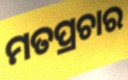
ମତପ୍ରଚାର